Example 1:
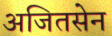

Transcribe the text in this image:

अजितसेन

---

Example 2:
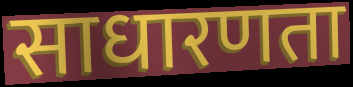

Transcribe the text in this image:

साधारणता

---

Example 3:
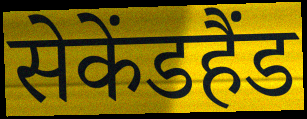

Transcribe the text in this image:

सेकेंडहैंड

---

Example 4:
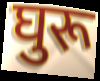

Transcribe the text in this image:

घुरू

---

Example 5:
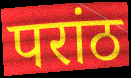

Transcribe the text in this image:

परांठ